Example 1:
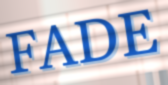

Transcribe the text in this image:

FADE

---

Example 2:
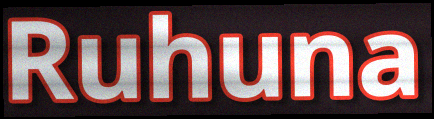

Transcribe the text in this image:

Ruhuna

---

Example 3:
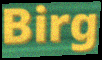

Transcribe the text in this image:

Birg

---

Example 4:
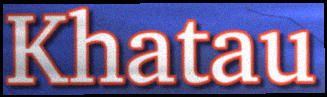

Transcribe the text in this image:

Khatau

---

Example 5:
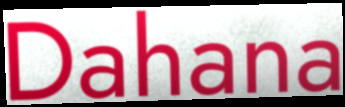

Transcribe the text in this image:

Dahana